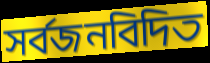
সর্বজনবিদিত